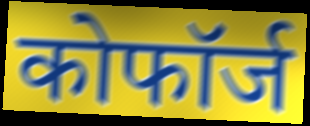
कोफॉर्ज